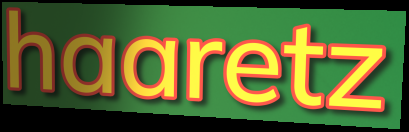
haaretz